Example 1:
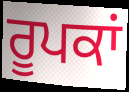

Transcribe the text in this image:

ਰੂਪਕਾਂ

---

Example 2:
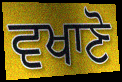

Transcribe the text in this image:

ਵਖਾਣੋ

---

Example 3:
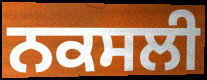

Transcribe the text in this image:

ਨਕਸਲੀ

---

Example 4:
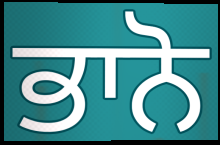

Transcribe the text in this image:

ਭਾਨੋ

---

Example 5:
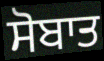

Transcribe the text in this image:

ਸੋਬਾਤ